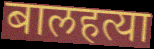
बालहत्या